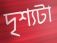
দৃশ্যটা